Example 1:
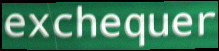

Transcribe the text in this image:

exchequer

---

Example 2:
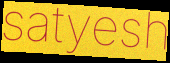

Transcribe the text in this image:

satyesh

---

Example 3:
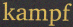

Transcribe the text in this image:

kampf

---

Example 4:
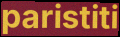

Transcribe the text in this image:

paristiti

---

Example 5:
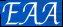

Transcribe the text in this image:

EAA